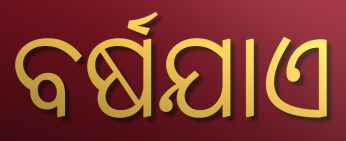
ବର୍ଷଯାଏ